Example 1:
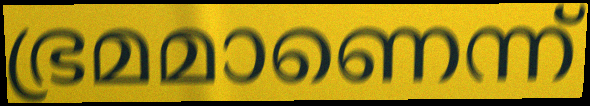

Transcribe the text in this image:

ഭ്രമമാണെന്ന്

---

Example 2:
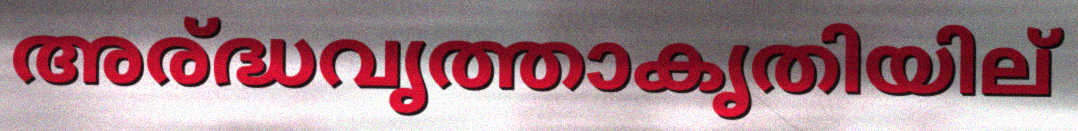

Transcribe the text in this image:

അര്ദ്ധവൃത്താകൃതിയില്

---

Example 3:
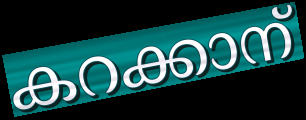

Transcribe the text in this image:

കറക്കാന്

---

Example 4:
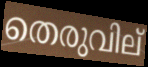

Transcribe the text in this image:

തെരുവില്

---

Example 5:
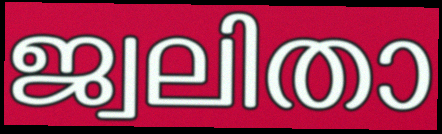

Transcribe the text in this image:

ജ്വലിതാ